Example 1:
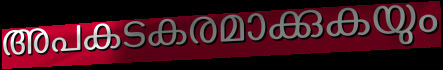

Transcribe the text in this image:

അപകടകരമാക്കുകയും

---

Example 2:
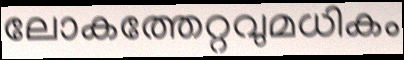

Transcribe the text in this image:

ലോകത്തേറ്റവുമധികം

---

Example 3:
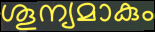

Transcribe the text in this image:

ശൂന്യമാകും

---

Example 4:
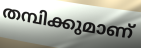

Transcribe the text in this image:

തമ്പിക്കുമാണ്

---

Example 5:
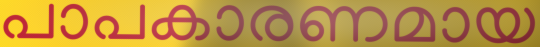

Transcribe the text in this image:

പാപകാരണമായ